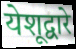
येशूद्वारे